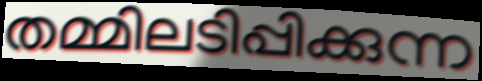
തമ്മിലടിപ്പിക്കുന്ന